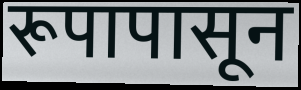
रूपापासून